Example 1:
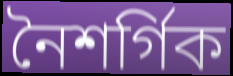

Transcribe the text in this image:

নৈশৰ্গিক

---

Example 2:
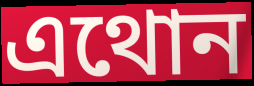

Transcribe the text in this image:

এথোন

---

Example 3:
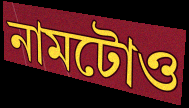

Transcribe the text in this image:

নামটোও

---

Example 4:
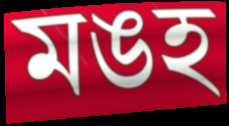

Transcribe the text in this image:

মঙহ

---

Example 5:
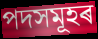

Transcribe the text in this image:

পদসমূহৰ